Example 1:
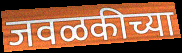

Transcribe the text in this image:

जवळकीच्या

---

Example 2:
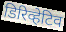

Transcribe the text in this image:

डिरिव्हेटिव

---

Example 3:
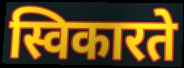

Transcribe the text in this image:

स्विकारते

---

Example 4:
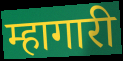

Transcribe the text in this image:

म्हागारी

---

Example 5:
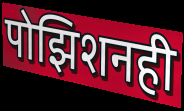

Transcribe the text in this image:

पोझिशनही